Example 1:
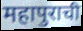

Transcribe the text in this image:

महापुराची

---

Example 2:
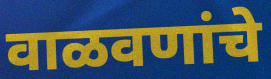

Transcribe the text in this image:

वाळवणांचे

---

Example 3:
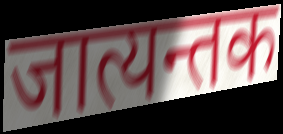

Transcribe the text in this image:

जात्यन्तक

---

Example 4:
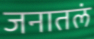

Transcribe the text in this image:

जनातलं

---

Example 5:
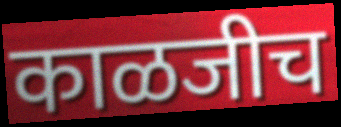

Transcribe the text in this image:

काळजीच